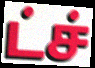
ட்ச்